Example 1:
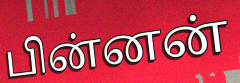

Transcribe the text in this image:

பின்னன்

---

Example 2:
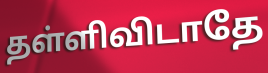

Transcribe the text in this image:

தள்ளிவிடாதே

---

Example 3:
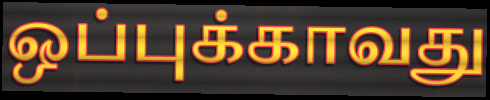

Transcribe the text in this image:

ஒப்புக்காவது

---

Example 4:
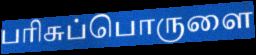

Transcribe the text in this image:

பரிசுப்பொருளை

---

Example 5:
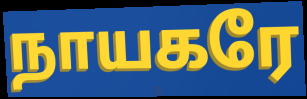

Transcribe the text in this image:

நாயகரே